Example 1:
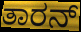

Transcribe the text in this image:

ತಾರನ್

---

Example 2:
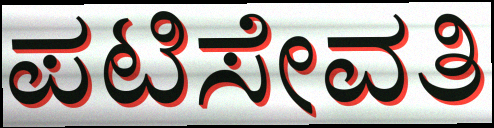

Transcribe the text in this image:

ಪಟಿಸೇವತಿ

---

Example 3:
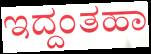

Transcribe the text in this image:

ಇದ್ದಂತಹಾ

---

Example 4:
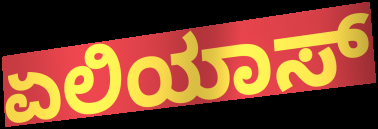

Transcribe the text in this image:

ಏಲಿಯಾಸ್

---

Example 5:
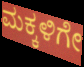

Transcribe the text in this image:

ಮಕ್ಕಳಿಗೇ